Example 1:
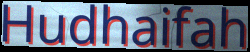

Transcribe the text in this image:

Hudhaifah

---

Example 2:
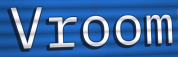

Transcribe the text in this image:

Vroom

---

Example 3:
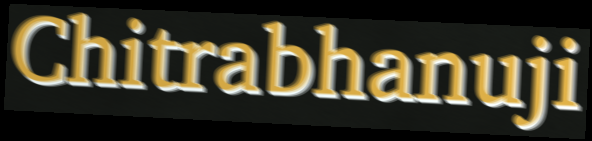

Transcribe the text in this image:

Chitrabhanuji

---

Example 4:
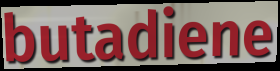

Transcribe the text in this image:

butadiene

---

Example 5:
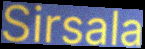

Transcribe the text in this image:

Sirsala